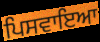
ਪਿਸਵਾਇਆ